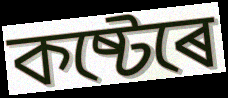
কষ্টেৰে